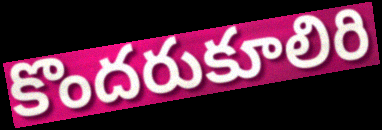
కొందరుకూలిరి